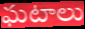
ఘటాలు